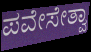
ಪವೇಸೇತ್ವಾ